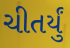
ચીતર્યું